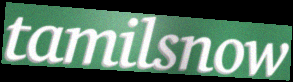
tamilsnow